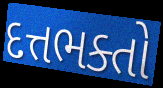
દત્તભક્તો